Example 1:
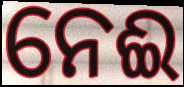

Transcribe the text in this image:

ନେଈ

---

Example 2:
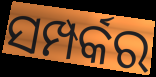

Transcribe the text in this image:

ସମ୍ପର୍କର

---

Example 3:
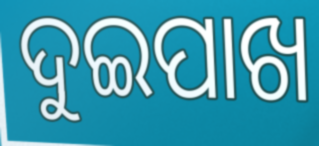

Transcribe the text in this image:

ଦୁଇପାଖ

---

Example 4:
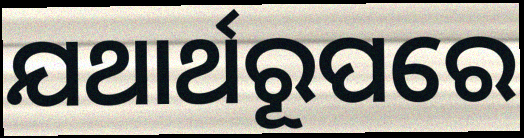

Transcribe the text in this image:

ଯଥାର୍ଥରୂପରେ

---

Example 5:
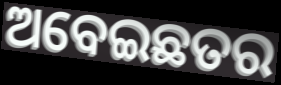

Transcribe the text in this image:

ଅବେଇଛତର